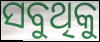
ସବୁଥିକୁ